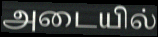
அடையில்